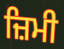
ਜ਼ਿਮੀ